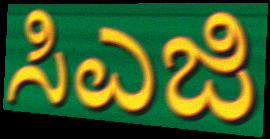
ಸಿಎಜಿ